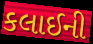
કલાઈની